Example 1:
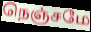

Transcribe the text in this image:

நெஞ்சமே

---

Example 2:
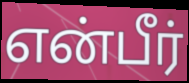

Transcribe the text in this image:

என்பீர்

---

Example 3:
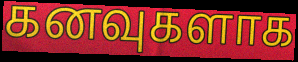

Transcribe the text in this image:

கனவுகளாக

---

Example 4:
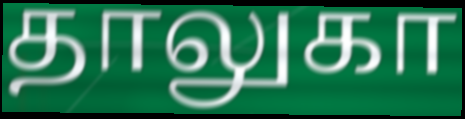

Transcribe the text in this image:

தாலுகா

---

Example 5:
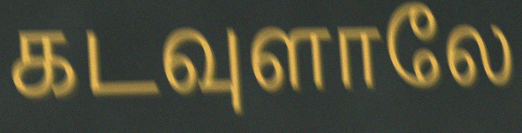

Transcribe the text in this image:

கடவுளாலே